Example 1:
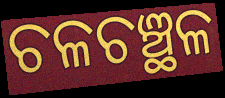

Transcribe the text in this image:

ଚଳଚଞ୍ଛଳ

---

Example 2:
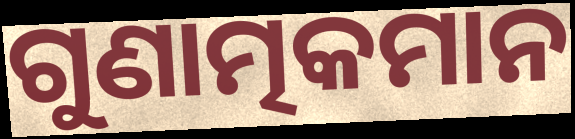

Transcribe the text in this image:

ଗୁଣାତ୍ମକମାନ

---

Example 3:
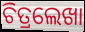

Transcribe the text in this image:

ଚିତ୍ରଲେଖା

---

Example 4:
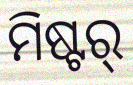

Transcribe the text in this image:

ମିଷ୍ଟର୍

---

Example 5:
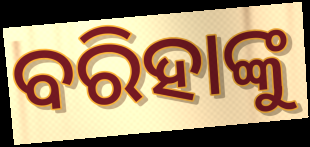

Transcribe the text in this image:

ବରିହାଙ୍କୁ